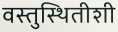
वस्तुस्थितीशी